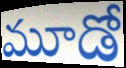
మూడో